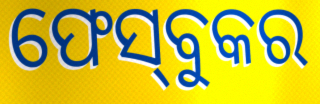
ଫେସ୍‌ବୁକର